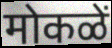
मोकळें